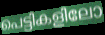
പെട്ടികളിലോ